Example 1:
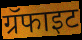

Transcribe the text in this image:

ग्रॅफाइट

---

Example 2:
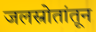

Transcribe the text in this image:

जलस्रोतांतून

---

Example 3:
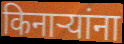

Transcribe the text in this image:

किनाऱ्यांना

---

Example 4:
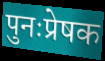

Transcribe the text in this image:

पुनःप्रेषक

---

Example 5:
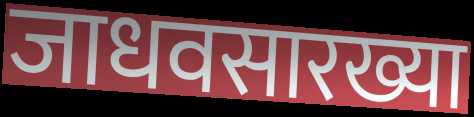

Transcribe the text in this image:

जाधवसारख्या